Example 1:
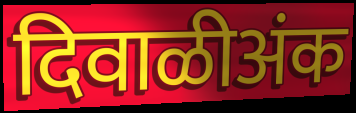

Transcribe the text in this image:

दिवाळीअंक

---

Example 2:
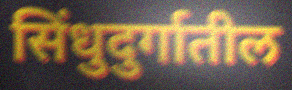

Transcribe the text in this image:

सिंधुदुर्गातील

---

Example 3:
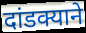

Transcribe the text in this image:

दांडक्याने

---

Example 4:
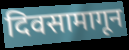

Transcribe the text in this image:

दिवसामागून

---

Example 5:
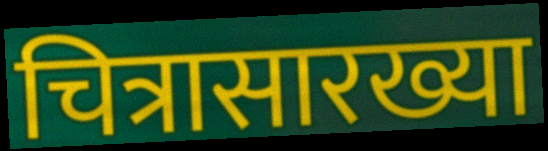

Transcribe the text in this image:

चित्रासारख्या